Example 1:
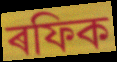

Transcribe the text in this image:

ৰফিক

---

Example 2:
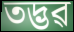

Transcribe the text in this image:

তদ্ভৱ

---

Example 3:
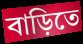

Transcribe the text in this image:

বাড়িতে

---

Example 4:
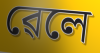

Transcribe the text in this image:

ৱেলে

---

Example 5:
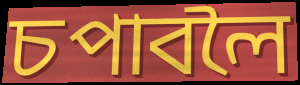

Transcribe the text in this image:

চপাবলৈ